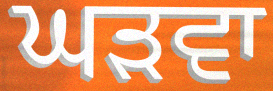
ਘੜਵਾ